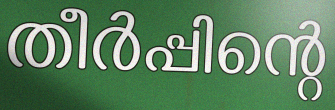
തീർപ്പിന്റെ